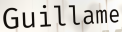
Guillame